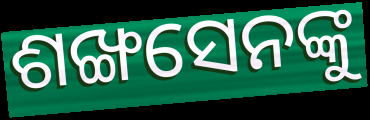
ଶଙ୍ଖସେନଙ୍କୁ